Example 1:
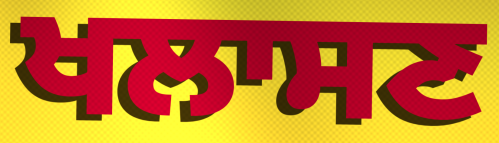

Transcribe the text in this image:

ਖਲਾਸਣ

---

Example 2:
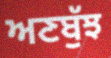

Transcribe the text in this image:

ਅਣਬੁੱਝ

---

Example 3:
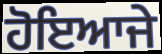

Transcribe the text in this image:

ਹੋਇਆਜੇ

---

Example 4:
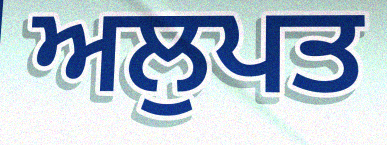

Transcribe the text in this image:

ਅਲੁਪਤ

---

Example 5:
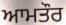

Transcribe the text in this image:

ਆਮਤੌਰ